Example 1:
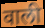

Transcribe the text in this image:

वाली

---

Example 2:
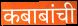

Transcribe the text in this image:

कबाबांची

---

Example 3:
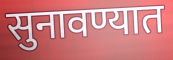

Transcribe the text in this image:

सुनावण्यात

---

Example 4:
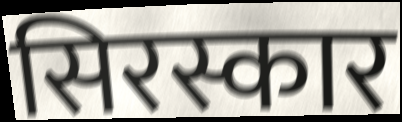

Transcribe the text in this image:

सिरस्कार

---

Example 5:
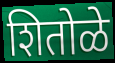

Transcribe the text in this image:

शितोळे